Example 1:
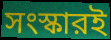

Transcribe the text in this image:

সংস্কারই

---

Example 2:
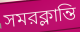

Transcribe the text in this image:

সমরক্লান্তি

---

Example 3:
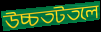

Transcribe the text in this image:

উচ্চতটতলে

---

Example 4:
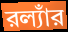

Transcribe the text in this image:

রল্যাঁর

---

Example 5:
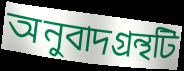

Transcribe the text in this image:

অনুবাদগ্রন্থটি